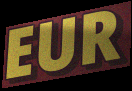
EUR